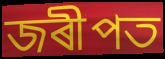
জৰীপত